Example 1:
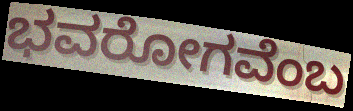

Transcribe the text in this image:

ಭವರೋಗವೆಂಬ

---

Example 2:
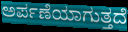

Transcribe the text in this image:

ಅರ್ಪಣೆಯಾಗುತ್ತದೆ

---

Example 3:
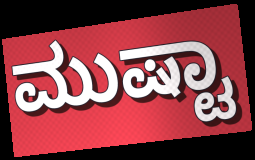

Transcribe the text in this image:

ಮುಷ್ಟಾ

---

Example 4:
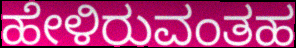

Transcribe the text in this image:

ಹೇಳಿರುವಂತಹ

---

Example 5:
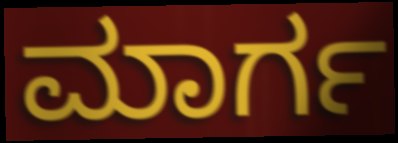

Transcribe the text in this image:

ಮಾರ್ಗ